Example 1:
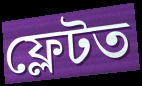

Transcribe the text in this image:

ফ্লেটত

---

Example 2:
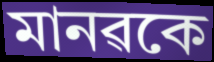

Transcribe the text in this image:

মানৱকে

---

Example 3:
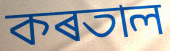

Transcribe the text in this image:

কৰতাল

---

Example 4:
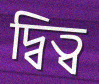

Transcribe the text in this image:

দ্বিত্ব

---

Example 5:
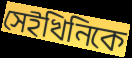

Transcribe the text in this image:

সেইখিনিকে